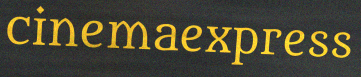
cinemaexpress